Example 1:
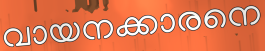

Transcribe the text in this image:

വായനക്കാരനെ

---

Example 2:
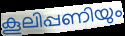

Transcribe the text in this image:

കൂലിപ്പണിയും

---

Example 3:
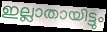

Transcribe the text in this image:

ഇല്ലാതായിട്ടും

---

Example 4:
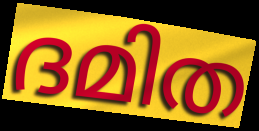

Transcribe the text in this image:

ദമിത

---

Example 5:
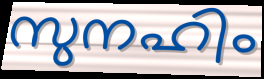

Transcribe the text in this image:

സുനഹിം